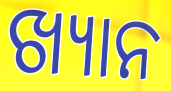
ଖ୍ୟାନ